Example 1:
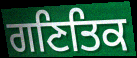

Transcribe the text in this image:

ਗਣਿਤਿਕ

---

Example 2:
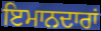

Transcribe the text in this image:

ਇਮਾਨਦਾਰਾਂ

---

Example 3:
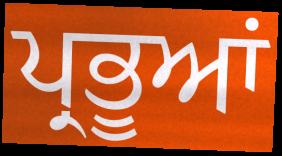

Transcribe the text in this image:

ਪ੍ਰਭੂਆਂ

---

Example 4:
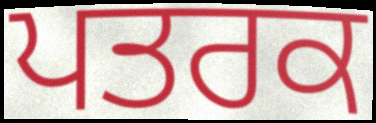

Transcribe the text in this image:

ਪਤਰਕ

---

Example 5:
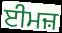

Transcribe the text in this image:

ਈਮਜ਼